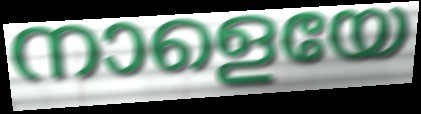
നാളെയേ